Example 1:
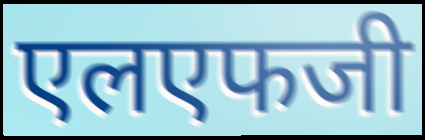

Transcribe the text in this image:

एलएफजी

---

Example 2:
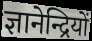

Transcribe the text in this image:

ज्ञानेन्द्रियों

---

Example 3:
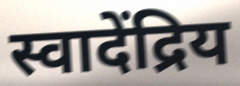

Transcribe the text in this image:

स्वादेंद्रिय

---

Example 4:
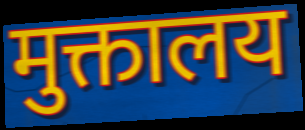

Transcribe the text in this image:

मुक्तालय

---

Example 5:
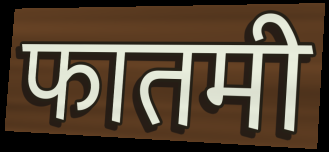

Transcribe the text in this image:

फातमी